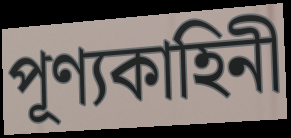
পূণ্যকাহিনী